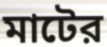
মাটের